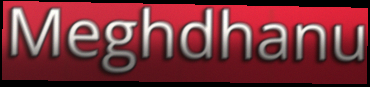
Meghdhanu